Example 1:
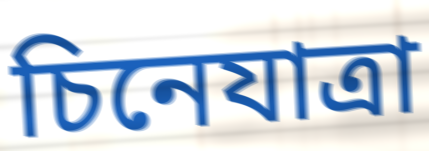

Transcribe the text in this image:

চিনেযাত্ৰা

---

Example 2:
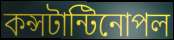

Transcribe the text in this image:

কন্সটান্টিনোপল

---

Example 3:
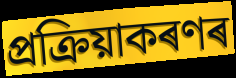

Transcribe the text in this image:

প্ৰক্ৰিয়াকৰণৰ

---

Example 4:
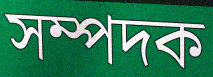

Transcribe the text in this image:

সম্পদক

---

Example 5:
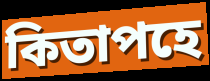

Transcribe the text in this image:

কিতাপহে